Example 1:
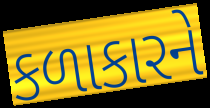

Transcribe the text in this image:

કળાકારને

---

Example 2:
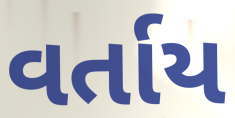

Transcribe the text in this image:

વર્તાય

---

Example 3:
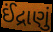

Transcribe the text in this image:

ઈંદ્રાણું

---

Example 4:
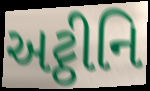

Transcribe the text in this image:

અટ્ઠીનિ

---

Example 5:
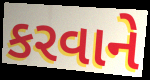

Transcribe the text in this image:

કરવાને